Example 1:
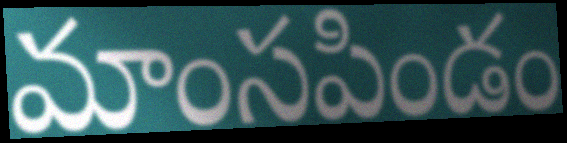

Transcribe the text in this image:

మాంసపిండం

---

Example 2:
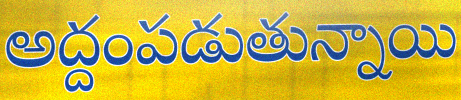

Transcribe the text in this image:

అద్దంపడుతున్నాయి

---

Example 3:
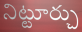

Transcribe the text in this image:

నిట్టూర్చు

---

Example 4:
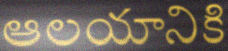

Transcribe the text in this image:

ఆలయానికి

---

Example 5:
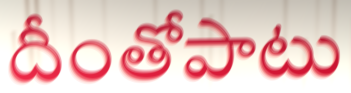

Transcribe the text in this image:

దీంతోపాటు